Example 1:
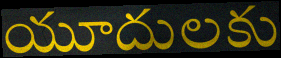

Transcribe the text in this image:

యూదులకు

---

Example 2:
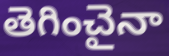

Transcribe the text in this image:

తెగించైనా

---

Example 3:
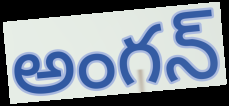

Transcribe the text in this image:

అంగన్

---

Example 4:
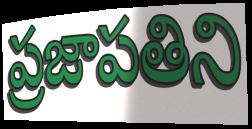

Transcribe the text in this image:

ప్రజాపతిని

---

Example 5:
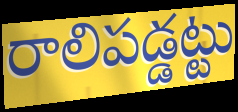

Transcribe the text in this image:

రాలిపడ్డట్టు